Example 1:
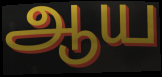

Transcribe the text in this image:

ஆய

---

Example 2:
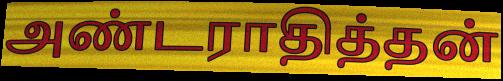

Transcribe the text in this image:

அண்டராதித்தன்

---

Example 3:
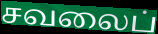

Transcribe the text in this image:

சவலைப்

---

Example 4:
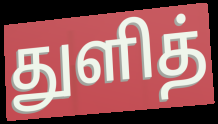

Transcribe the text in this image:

துளித்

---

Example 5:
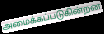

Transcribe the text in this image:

அமைக்கப்படுகின்றன